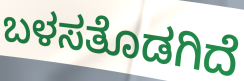
ಬಳಸತೊಡಗಿದೆ